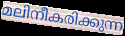
മലിനീകരിക്കുന്ന